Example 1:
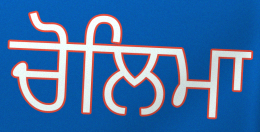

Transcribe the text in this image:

ਚੋਲਿਮਾ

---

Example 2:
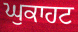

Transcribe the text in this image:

ਘੁਕਾਹਟ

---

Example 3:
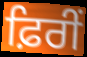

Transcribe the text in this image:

ਫ਼ਿਰੀਂ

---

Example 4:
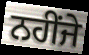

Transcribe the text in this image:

ਨਹੀਂਜੇ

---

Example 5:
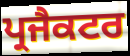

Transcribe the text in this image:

ਪ੍ਰਜੈਕਟਰ